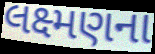
લક્ષ્મણના